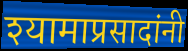
श्यामाप्रसादांनी